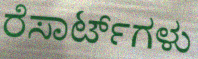
ರೆಸಾರ್ಟ್‌ಗಳು